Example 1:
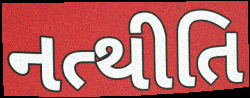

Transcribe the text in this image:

નત્થીતિ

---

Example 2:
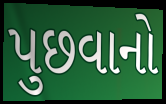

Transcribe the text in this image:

પુછવાનો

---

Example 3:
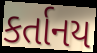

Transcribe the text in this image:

કર્તાનય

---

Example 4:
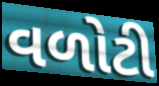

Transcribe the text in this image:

વળોટી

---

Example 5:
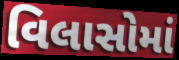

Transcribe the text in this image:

વિલાસોમાં